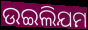
ଉଇଲିଯମ